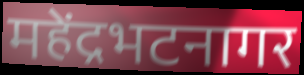
महेंद्रभटनागर